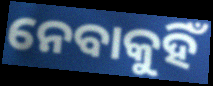
ନେବାକୁହିଁ